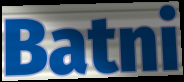
Batni